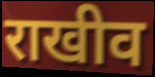
राखीव